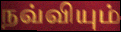
நவ்வியும்